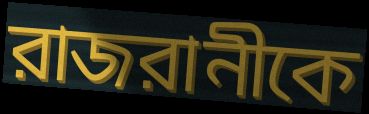
রাজরানীকে